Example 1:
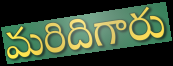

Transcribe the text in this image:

మరిదిగారు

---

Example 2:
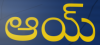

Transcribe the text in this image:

ఆయ్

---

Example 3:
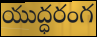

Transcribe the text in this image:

యుద్ధరంగ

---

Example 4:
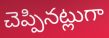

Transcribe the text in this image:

చెప్పినట్లుగా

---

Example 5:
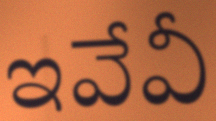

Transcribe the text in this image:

ఇవేవీ